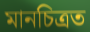
মানচিত্ৰত